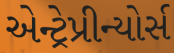
એન્ટ્રેપ્રીન્યોર્સ